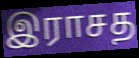
இராசத